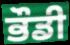
ਭੌਡੀ